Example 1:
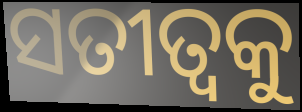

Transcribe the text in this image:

ସତୀତ୍ୱକୁ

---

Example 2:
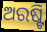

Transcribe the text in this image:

ଅରଷ୍ଟି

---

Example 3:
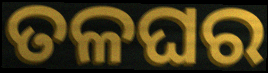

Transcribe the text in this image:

ତଳଘର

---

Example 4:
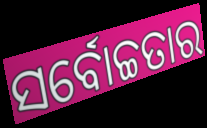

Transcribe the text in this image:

ସର୍ବୋଚ୍ଚତାର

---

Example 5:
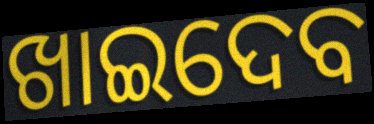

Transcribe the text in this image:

ଖାଇଦେବ